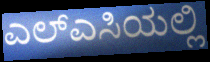
ಎಲ್ಎಸಿಯಲ್ಲಿ